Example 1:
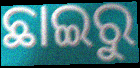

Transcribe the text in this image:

ଛାଇରୁ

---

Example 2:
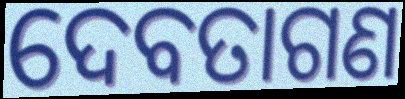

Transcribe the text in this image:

ଦେବତାଗଣ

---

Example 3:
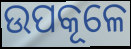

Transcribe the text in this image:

ଉପକୂଳେ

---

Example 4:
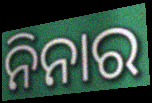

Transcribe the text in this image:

ନିନାର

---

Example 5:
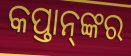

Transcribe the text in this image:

କପ୍ତାନ୍‌ଙ୍କର